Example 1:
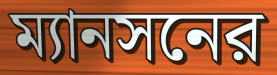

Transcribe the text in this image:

ম্যানসনের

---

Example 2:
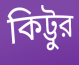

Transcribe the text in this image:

কিট্টুর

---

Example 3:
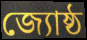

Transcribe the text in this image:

জ্যোষ্ঠ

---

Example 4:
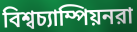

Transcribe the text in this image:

বিশ্বচ্যাম্পিয়নরা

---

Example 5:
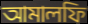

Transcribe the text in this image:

আমালফি